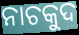
ନାଚକୁଦ